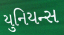
યુનિયન્સ